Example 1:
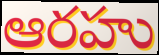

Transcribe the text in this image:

ఆరహు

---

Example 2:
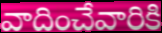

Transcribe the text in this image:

వాదించేవారికి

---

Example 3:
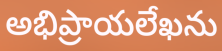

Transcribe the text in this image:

అభిప్రాయలేఖను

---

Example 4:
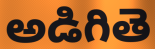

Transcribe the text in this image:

అడిగితె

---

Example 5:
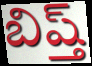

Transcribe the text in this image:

బిష్త్